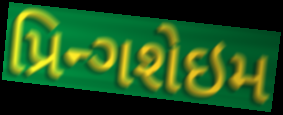
પ્રિન્ગશેઇમ